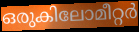
ഒരുകിലോമീറ്റർ